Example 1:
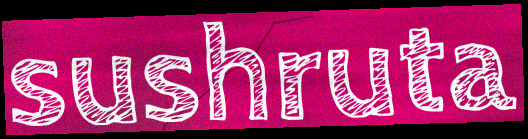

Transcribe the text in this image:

sushruta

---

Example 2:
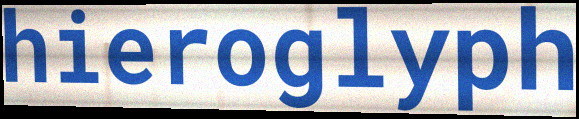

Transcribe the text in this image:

hieroglyph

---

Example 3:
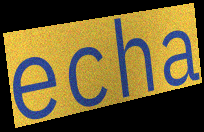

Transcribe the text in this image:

echa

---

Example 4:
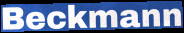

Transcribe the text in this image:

Beckmann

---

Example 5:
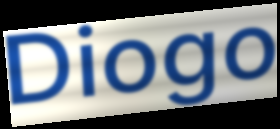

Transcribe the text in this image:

Diogo